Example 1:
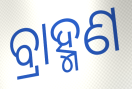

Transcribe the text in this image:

ବ୍ରାହ୍ମଣ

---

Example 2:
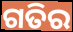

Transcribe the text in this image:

ଗତିର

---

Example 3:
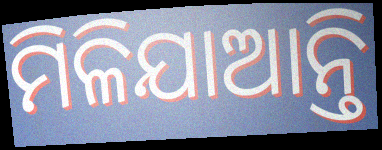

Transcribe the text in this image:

ମିଳିଯାଆନ୍ତି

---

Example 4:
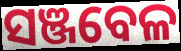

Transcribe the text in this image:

ସଞ୍ଜବେଳ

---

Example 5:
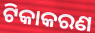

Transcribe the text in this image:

ଟିକାକରଣ